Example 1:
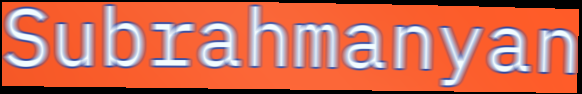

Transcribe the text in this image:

Subrahmanyan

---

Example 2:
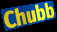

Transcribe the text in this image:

Chubb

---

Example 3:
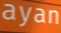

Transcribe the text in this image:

ayan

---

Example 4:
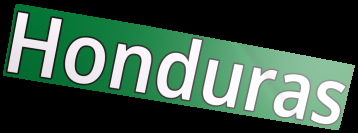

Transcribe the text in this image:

Honduras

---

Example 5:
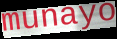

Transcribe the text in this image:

munayo